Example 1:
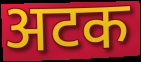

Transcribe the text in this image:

अटक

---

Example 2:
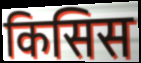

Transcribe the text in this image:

किसिस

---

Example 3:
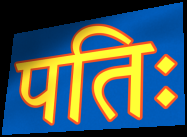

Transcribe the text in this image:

पतिः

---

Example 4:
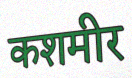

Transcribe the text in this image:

कशमीर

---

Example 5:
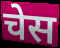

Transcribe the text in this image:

चेस